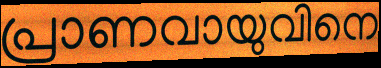
പ്രാണവായുവിനെ